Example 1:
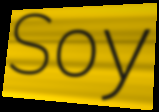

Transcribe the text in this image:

Soy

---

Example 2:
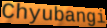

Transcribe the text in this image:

Chyubangi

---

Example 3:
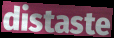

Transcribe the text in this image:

distaste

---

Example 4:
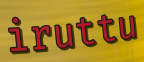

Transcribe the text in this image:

iruttu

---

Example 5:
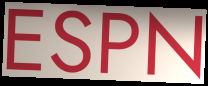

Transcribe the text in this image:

ESPN